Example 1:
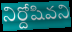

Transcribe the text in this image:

నిర్దోషివని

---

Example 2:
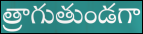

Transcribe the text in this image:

త్రాగుతుండగా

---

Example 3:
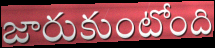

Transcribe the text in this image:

జారుకుంటోంది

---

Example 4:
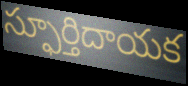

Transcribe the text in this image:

స్ఫూర్తిదాయక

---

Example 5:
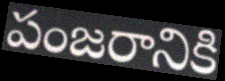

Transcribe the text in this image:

పంజరానికి